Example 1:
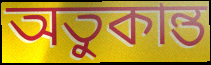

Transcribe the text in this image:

অতুকান্ত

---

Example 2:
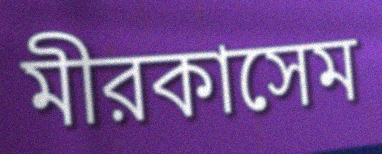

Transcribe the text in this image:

মীরকাসেম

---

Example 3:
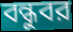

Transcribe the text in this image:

বন্ধুবর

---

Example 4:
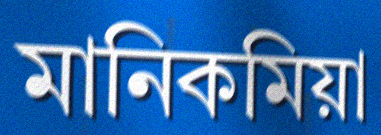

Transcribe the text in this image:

মানিকমিয়া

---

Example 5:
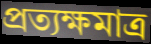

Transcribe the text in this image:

প্রত্যক্ষমাত্র